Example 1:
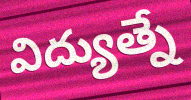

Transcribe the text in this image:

విద్యుత్నే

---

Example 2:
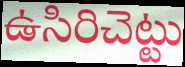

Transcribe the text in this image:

ఉసిరిచెట్టు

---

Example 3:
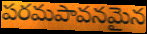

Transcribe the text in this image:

పరమపావనమైన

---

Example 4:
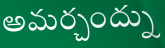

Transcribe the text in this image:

అమర్చంద్ను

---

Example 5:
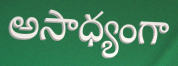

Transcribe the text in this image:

అసాధ్యంగా